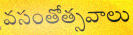
వసంతోత్సవాలు